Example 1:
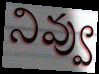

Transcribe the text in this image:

నివ్వు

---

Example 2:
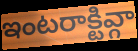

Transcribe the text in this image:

ఇంటరాక్టివ్గా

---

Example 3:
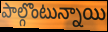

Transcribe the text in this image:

పాల్గొంటున్నాయి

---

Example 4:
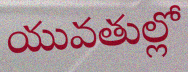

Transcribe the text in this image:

యువతుల్లో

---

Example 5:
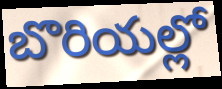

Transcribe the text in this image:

బొరియల్లో